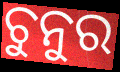
ଚୁନୁର